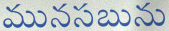
మునసబును